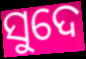
ସୁଦେ